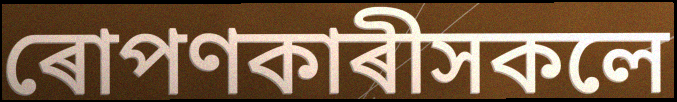
ৰোপণকাৰীসকলে